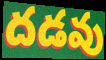
దడవు